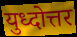
युध्दोत्तर